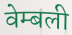
वेम्बली